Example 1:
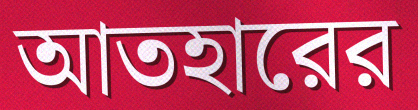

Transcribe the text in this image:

আতহারের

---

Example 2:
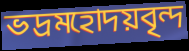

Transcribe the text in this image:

ভদ্রমহোদয়বৃন্দ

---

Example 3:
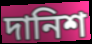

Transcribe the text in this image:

দানিশ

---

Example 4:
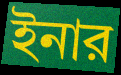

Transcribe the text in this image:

ইনার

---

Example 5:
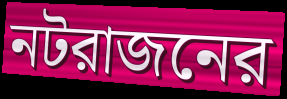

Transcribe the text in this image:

নটরাজনের